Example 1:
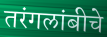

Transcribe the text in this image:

तरंगलांबीचे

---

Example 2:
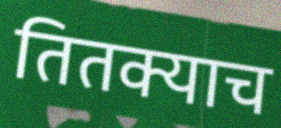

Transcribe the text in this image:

तितक्याच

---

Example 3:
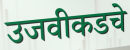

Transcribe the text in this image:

उजवीकडचे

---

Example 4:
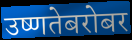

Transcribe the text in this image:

उष्णतेबरोबर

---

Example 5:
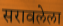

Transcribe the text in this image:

सरावलेला